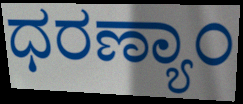
ಧರಣ್ಯಾಂ